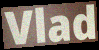
Vlad